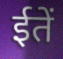
ईतें